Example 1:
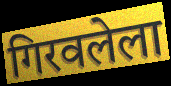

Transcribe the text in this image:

गिरवलेला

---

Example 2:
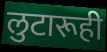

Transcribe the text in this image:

लुटारूही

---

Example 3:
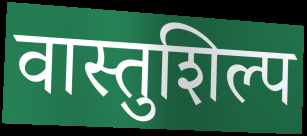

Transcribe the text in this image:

वास्तुशिल्प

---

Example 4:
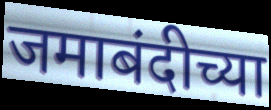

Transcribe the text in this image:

जमाबंदीच्या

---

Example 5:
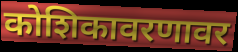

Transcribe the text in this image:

कोशिकावरणावर